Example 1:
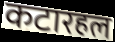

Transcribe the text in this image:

कटारहल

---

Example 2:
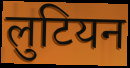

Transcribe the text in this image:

लुटियन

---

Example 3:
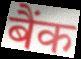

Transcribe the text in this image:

बैंक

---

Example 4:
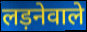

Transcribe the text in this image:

लड़नेवाले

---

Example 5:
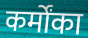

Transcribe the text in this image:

कर्मोंका